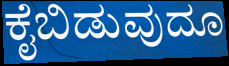
ಕೈಬಿಡುವುದೂ